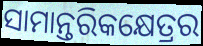
ସାମାନ୍ତରିକକ୍ଷେତ୍ରର